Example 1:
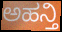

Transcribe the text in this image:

ಅಹನ್ತಿ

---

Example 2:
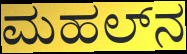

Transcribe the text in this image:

ಮಹಲ್‌ನ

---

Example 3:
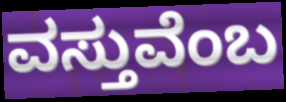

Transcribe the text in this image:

ವಸ್ತುವೆಂಬ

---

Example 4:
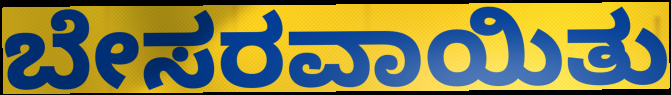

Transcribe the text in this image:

ಬೇಸರವಾಯಿತು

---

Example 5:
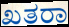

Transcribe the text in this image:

ಖತರಾ